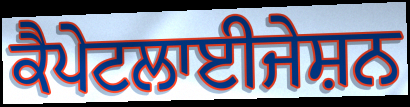
ਕੈਪੇਟਲਾਈਜੇਸ਼ਨ